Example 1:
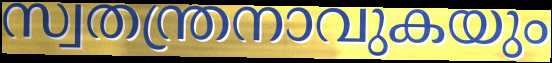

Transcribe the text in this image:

സ്വതന്ത്രനാവുകയും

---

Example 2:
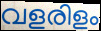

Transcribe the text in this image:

വളരിളം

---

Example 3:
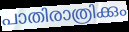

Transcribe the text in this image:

പാതിരാത്രിക്കും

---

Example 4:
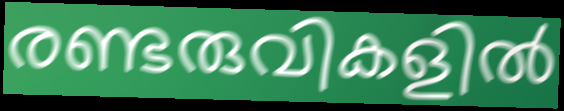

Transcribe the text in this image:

രണ്ടരുവികളിൽ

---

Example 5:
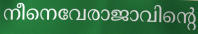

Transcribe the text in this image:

നീനെവേരാജാവിന്റെ